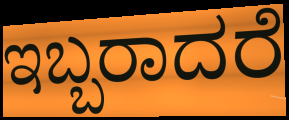
ಇಬ್ಬರಾದರೆ